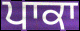
ਪਾਕਾ